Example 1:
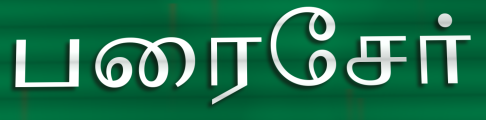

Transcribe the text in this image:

பரைசேர்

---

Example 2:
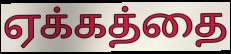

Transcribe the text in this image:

ஏக்கத்தை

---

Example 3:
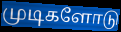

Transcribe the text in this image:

முடிகளோடு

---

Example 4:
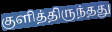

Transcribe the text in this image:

குளித்திருந்தது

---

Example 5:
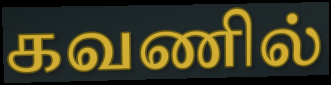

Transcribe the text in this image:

கவணில்